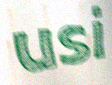
usi